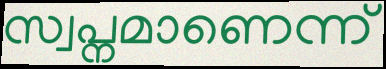
സ്വപ്നമാണെന്ന്